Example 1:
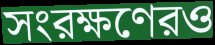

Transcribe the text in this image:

সংরক্ষণেরও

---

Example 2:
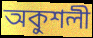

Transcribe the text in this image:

অকুশলী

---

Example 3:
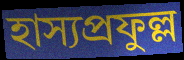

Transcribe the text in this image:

হাস্যপ্রফুল্ল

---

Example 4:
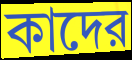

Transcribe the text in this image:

কাদের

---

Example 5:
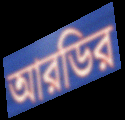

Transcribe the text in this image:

আরডির